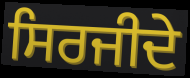
ਸਿਰਜੀਦੇ